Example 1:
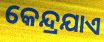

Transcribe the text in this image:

କେନ୍ଦ୍ରଯାଏ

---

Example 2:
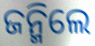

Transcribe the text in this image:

ଜନ୍ମିଲେ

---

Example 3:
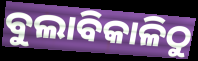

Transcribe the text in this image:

ବୁଲାବିକାଳିଠୁ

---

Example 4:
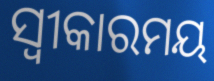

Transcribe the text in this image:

ସ୍ଵୀକାରମୟ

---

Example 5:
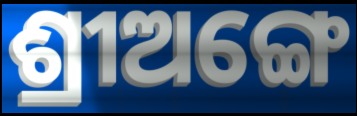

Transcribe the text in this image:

ଶ୍ରୀଅଙ୍ଗେ